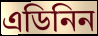
এডিনিন